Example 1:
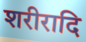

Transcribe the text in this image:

शरीरादि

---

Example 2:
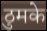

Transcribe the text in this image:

ठुमके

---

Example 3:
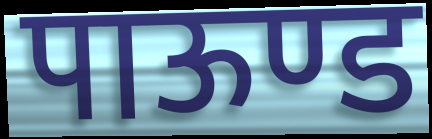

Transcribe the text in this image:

पाऊण्ड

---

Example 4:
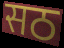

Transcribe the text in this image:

सठ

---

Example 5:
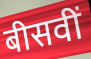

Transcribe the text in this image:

बीसवीं